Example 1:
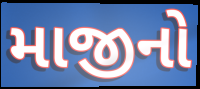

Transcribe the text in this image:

માજીનો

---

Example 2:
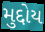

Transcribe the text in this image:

મુદ્દોય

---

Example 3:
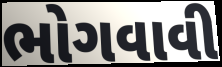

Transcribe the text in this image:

ભોગવાવી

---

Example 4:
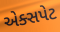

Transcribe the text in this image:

એક્સપેટ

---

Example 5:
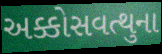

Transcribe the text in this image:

અક્કોસવત્થુના